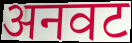
अनवट